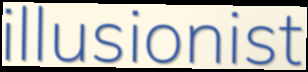
illusionist